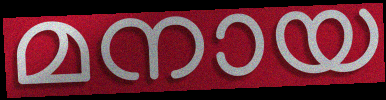
മനായ